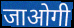
जाओगी